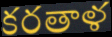
కరతాళ